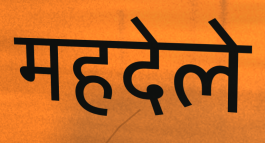
महदेले